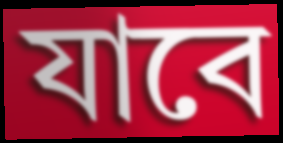
যাবে